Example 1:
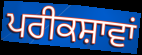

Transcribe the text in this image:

ਪਰੀਕਸ਼ਾਵਾਂ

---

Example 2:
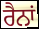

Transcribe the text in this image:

ਰੈਨਾਂ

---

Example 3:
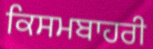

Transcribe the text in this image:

ਕਿਸਮਬਾਹਰੀ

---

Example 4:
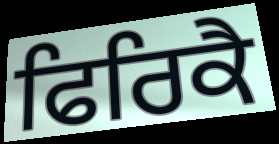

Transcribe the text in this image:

ਫਿਰਿਕੈ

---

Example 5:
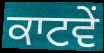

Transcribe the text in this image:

ਕਾਟਵੇਂ